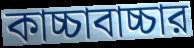
কাচ্চাবাচ্চার